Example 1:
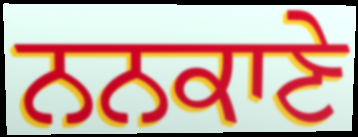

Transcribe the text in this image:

ਨਨਕਾਣੇ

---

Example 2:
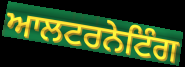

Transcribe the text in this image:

ਆਲਟਰਨੇਟਿੰਗ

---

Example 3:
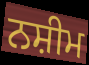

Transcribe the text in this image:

ਨਸ਼ੀਮ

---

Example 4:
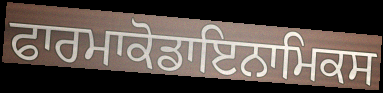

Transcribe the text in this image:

ਫਾਰਮਾਕੋਡਾਇਨਾਮਿਕਸ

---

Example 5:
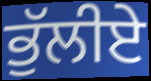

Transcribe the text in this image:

ਭੁੱਲੀਏ